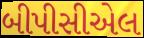
બીપીસીએલ